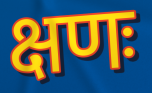
क्षणः